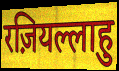
रज़ियल्लाहु